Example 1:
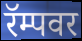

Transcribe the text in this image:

रॅम्पवर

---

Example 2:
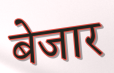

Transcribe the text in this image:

बेजार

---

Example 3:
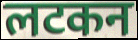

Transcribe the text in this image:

लटकन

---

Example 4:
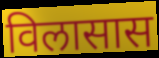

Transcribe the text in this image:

विलासास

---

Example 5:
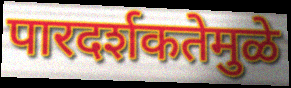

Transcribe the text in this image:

पारदर्शकतेमुळे